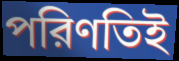
পরিণতিই